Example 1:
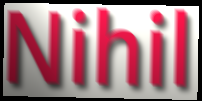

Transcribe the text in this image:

Nihil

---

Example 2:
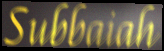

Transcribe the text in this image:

Subbaiah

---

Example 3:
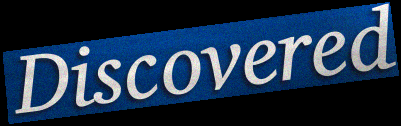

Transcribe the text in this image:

Discovered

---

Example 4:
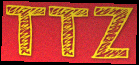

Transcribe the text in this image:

TTZ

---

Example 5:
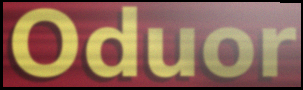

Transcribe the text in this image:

Oduor